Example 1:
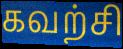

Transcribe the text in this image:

கவற்சி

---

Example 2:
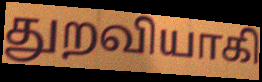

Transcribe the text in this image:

துறவியாகி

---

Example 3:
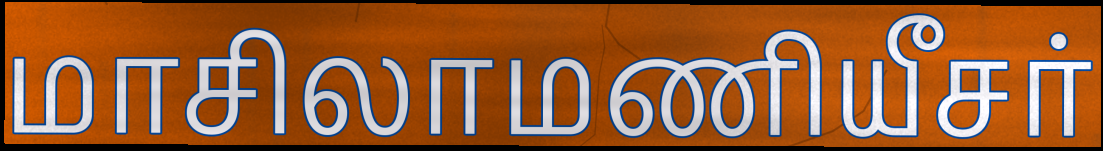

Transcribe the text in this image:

மாசிலாமணியீசர்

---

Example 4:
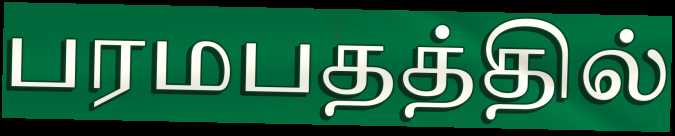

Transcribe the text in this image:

பரமபதத்தில்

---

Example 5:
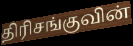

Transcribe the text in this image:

திரிசங்குவின்